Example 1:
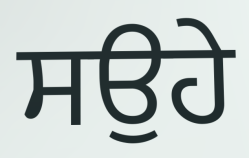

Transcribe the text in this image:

ਸਉਹੇ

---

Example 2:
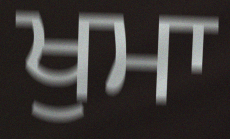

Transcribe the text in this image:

ਖੁਮਾ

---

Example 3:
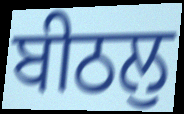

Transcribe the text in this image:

ਬੀਠਲੁ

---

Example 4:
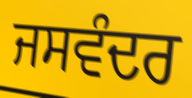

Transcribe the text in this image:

ਜਸਵੰਦਰ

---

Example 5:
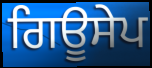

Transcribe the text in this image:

ਗਿਊਸੇਪ